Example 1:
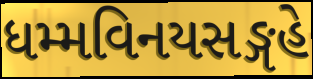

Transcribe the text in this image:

ધમ્મવિનયસઙ્ગહે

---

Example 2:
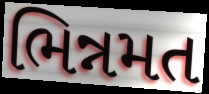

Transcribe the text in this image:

ભિન્નમત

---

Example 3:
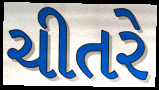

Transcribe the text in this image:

ચીતરે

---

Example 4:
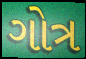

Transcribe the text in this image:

ગોત્ર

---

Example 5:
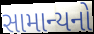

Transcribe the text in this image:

સામાન્યનો